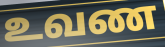
உவண